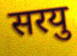
सरयु